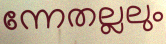
ന്നേതല്ലലും